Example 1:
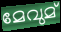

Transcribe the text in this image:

മേവുമ്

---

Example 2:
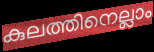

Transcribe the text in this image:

കുലത്തിനെല്ലാം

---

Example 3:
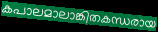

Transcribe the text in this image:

കപാലമാലാങ്കിതകന്ധരായ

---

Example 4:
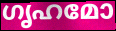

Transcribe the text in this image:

ഗൃഹമോ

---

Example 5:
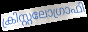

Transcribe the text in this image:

ക്രിസ്റ്റലോഗ്രാഫി